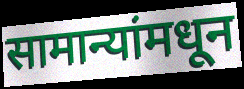
सामान्यांमधून